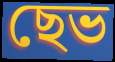
ছেভ